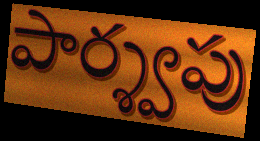
పార్శ్వపు